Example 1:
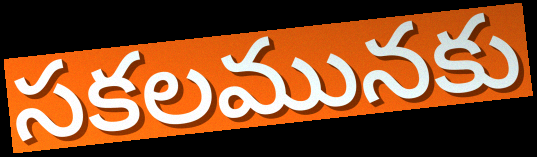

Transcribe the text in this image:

సకలమునకు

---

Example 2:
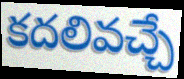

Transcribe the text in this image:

కదలివచ్చే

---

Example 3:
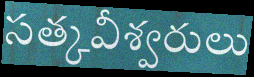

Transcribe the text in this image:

సత్కవీశ్వరులు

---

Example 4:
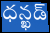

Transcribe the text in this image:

ధన్ఖడ్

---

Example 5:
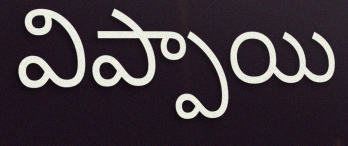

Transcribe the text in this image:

విప్పాయి